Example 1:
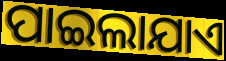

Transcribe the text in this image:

ପାଇଲାଯାଏ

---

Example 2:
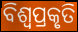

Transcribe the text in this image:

ବିଶ୍ଵପ୍ରକୃତି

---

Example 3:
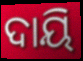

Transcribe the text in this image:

ଦାୟି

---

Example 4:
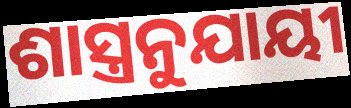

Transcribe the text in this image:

ଶାସ୍ତ୍ରନୁଯାୟୀ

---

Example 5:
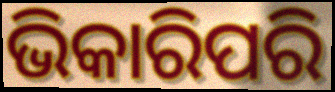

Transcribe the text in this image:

ଭିକାରିପରି